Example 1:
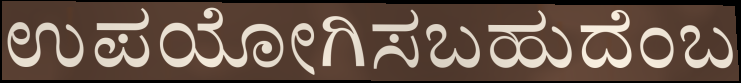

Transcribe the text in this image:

ಉಪಯೋಗಿಸಬಹುದೆಂಬ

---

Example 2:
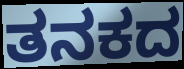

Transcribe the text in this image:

ತನಕದ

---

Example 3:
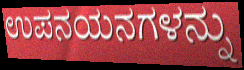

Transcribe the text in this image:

ಉಪನಯನಗಳನ್ನು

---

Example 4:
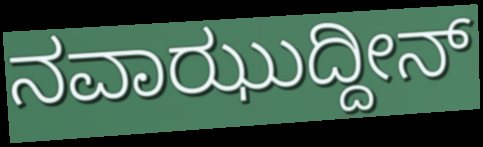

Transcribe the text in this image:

ನವಾಝುದ್ದೀನ್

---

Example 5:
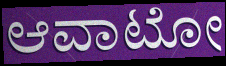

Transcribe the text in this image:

ಆವಾಟೋ